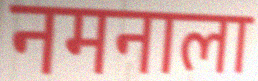
नमनाला